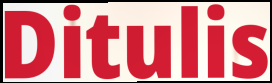
Ditulis